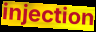
injection